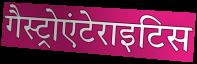
गैस्ट्रोएंटेराइटिस